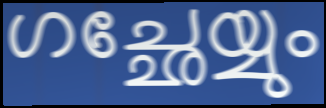
ഗച്ഛേയ്യും